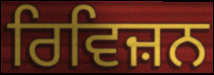
ਰਿਵਿਜ਼ਨ